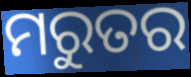
ମରୁତର